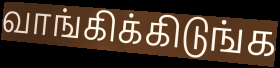
வாங்கிக்கிடுங்க